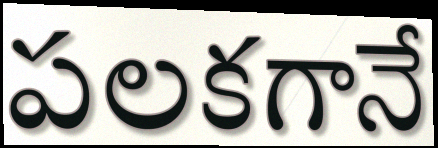
పలకగానే